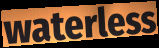
waterless